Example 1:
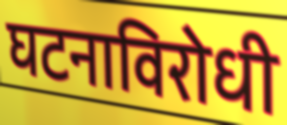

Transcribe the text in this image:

घटनाविरोधी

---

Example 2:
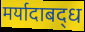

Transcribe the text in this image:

मर्यादाबद्ध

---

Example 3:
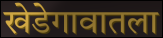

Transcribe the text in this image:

खेडेगावातला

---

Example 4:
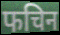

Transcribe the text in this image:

फचिन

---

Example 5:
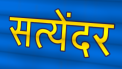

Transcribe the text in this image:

सत्येंदर